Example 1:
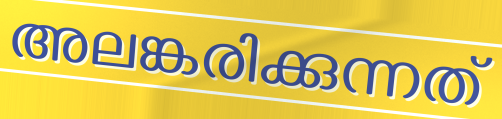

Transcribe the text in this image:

അലങ്കരിക്കുന്നത്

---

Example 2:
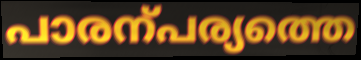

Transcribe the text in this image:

പാരന്പര്യത്തെ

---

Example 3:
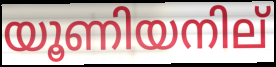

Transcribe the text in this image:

യൂണിയനില്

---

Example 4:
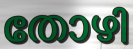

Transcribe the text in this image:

തോഴി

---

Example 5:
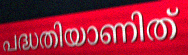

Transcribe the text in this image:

പദ്ധതിയാണിത്